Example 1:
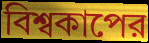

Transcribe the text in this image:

বিশ্বকাপের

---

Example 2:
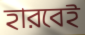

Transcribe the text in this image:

হারবেই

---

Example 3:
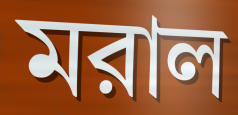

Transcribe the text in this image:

মরাল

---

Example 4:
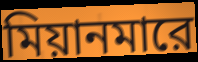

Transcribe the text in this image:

মিয়ানমারে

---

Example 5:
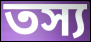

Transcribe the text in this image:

তস্য